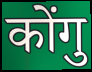
कोंगु